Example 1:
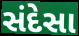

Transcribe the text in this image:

સંદેસા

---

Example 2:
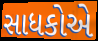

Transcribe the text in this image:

સાધકોએ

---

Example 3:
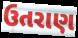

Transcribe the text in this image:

ઉતરાણ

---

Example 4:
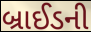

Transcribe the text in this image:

બ્રાઈડની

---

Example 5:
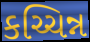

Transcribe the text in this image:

કચ્ચિન્ન